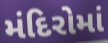
મંદિરોમાં